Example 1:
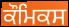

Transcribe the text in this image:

ਕੌਮਿਕਸ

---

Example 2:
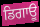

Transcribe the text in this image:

ਡਿਗਾਊ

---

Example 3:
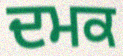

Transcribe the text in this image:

ਦਮਕ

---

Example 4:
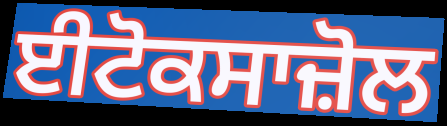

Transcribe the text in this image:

ਈਟੋਕਸਾਜ਼ੋਲ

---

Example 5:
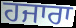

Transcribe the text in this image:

ਹਜਾਰਾ